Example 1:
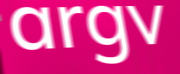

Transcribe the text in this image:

argv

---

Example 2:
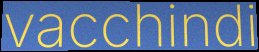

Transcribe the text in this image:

vacchindi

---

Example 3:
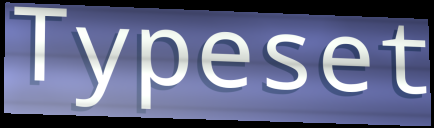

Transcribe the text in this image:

Typeset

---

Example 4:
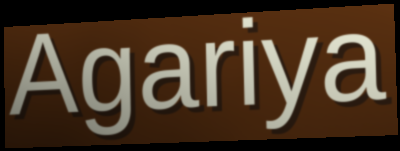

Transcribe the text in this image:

Agariya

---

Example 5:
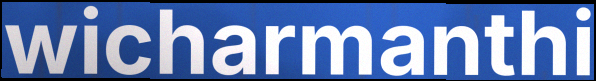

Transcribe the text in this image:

wicharmanthi